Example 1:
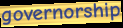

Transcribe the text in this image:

governorship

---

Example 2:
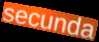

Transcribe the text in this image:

secunda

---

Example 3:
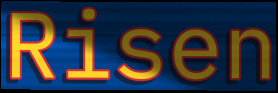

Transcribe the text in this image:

Risen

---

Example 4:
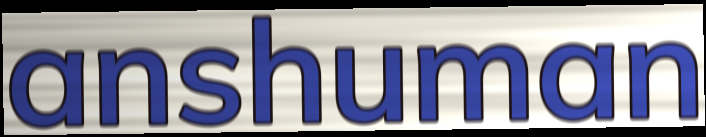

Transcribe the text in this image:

anshuman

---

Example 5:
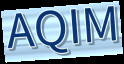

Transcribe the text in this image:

AQIM